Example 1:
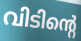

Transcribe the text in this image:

വിടിന്റെ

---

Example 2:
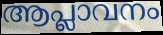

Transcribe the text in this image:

ആപ്ലാവനം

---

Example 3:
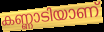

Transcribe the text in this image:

കണ്ണാടിയാണ്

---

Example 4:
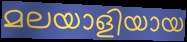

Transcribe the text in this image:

മലയാളിയായ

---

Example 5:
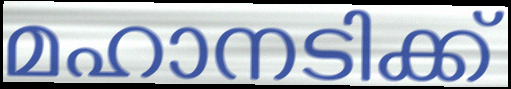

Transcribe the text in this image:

മഹാനടിക്ക്